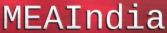
MEAIndia